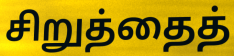
சிறுத்தைத்